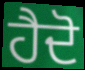
ਹੈਦੋ